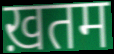
ख़तम